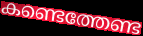
കണ്ടെത്തേണ്ട